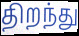
திறந்து